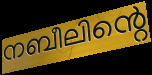
നബീലിന്റെ